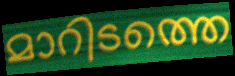
മാറിടത്തെ